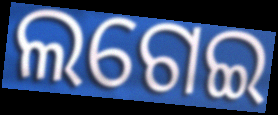
ଲଗେଇ